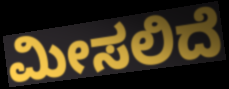
ಮೀಸಲಿದೆ